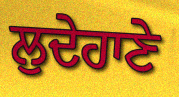
ਲੁਦੇਹਾਣੇ